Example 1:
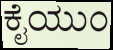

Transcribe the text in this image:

ಕೈಯುಂ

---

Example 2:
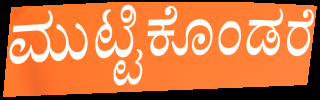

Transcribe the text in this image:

ಮುಟ್ಟಿಕೊಂಡರೆ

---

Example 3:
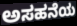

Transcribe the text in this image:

ಅಸಹನೆಯ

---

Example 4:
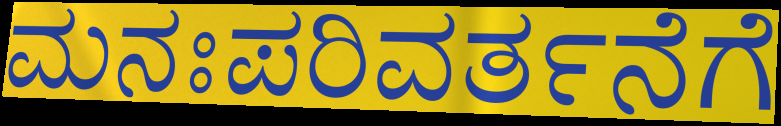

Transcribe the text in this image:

ಮನಃಪರಿವರ್ತನೆಗೆ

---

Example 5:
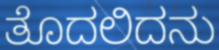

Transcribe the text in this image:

ತೊದಲಿದನು